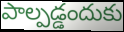
పాల్పడ్డందుకు